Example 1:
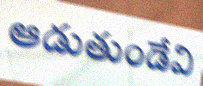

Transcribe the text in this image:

ఆడుతుండేవి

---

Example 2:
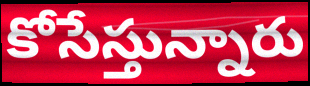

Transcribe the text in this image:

కోసేస్తున్నారు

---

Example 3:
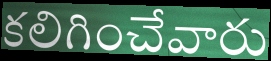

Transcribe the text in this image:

కలిగించేవారు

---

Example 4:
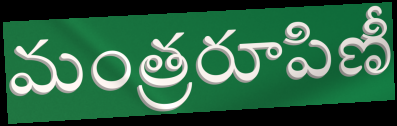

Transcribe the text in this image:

మంత్రరూపిణీ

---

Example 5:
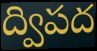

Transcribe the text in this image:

ద్విపద